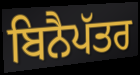
ਬਿਨੈਪੱਤਰ